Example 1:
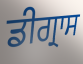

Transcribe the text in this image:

ਡੀਗ੍ਰਾਸ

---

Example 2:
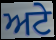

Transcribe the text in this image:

ਅਟੇ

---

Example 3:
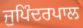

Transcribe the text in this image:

ਜੁਪਿੰਦਰਪਾਲ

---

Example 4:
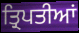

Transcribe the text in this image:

ਤ੍ਰਿਪਤੀਆਂ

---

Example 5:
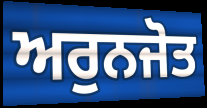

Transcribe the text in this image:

ਅਰੁਨਜੋਤ